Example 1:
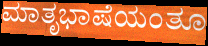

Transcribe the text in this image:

ಮಾತೃಭಾಷೆಯಂತೂ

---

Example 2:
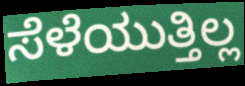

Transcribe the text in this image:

ಸೆಳೆಯುತ್ತಿಲ್ಲ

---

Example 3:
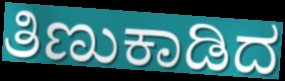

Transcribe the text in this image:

ತಿಣುಕಾಡಿದ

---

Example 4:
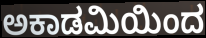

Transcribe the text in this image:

ಅಕಾಡಮಿಯಿಂದ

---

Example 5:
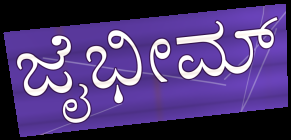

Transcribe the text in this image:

ಜೈಭೀಮ್